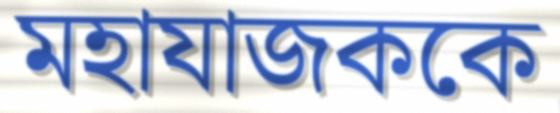
মহাযাজককে